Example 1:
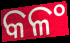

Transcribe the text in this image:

କଳଂ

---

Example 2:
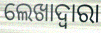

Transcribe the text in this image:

ଲେଖାଦ୍ୱାରା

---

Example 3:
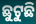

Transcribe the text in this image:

ଛୁଟୁଛି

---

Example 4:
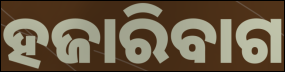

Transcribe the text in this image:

ହଜାରିବାଗ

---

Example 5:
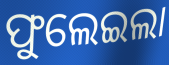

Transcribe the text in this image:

ଫୁଲେଇଲା